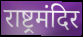
राष्ट्रमंदिर